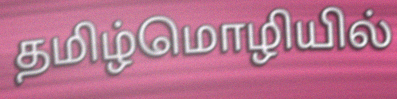
தமிழ்மொழியில்